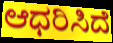
ಆಧರಿಸಿದೆ